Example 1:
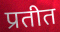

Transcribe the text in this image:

प्रतीत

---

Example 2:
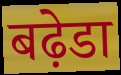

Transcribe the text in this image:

बढ़ेडा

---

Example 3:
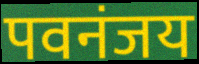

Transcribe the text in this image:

पवनंजय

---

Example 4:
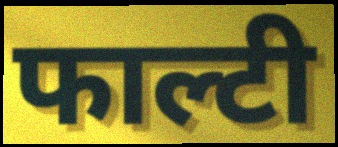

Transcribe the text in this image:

फाल्टी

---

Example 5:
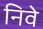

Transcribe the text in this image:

निवे